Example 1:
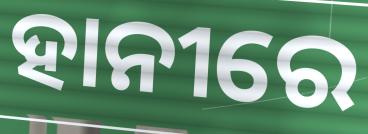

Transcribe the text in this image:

ହାନୀରେ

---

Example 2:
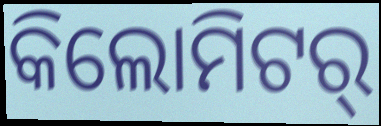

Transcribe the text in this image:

କିଲୋମିଟର୍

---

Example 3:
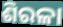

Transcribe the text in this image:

ଶିରଳା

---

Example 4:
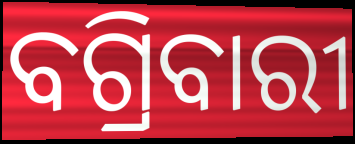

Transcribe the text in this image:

ବଗ୍ରିବାରୀ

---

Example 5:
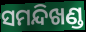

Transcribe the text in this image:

ସମନ୍ଦିଖଣ୍ଡ